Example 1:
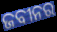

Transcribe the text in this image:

ଜବୀନର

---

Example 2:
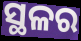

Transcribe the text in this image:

ସ୍ଥଳର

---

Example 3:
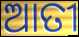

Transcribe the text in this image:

ଆତୀ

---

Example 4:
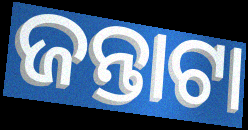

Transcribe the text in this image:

ଜନ୍ତାଟା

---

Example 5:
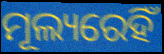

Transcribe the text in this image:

ମୂଲ୍ୟରେହିଁ